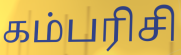
கம்பரிசி